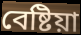
বেষ্টিয়া